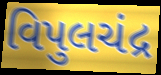
વિપુલચંદ્ર